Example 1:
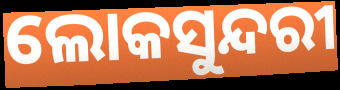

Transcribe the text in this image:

ଲୋକସୁନ୍ଦରୀ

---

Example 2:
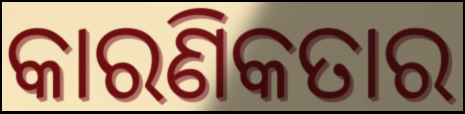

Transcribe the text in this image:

କାରଣିକତାର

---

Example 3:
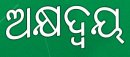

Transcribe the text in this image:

ଅକ୍ଷଦ୍ବୟ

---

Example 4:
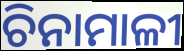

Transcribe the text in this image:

ଚିନାମାଳୀ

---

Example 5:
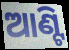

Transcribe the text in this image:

ଆଣ୍ଟି